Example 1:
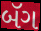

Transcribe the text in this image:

બૅગ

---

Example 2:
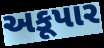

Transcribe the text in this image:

અકૂપાર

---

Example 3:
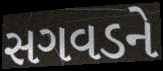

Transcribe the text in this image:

સગવડને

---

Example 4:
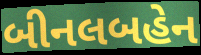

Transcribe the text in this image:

બીનલબહેન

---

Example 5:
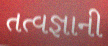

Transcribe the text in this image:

તત્વજ્ઞાની